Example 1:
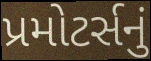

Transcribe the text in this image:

પ્રમોટર્સનું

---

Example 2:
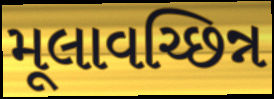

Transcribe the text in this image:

મૂલાવચ્છિન્ન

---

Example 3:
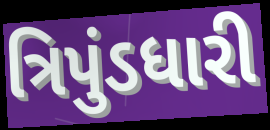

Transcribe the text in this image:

ત્રિપુંડધારી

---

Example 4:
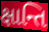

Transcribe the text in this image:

ક્ષાન્તિ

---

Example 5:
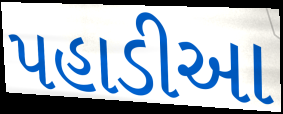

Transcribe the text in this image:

પહાડીઆ